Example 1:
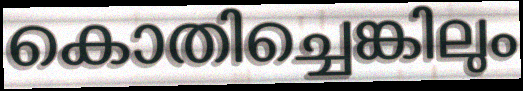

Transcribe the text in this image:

കൊതിച്ചെങ്കിലും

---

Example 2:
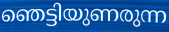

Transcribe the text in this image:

ഞെട്ടിയുണരുന്ന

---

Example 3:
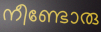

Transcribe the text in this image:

നീണ്ടോരു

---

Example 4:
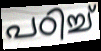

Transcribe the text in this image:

പഠിച്ച്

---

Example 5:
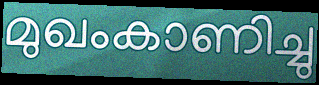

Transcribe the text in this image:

മുഖംകാണിച്ചു